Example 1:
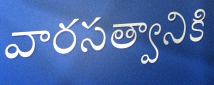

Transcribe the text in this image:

వారసత్వానికి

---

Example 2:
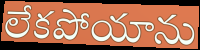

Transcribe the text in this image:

లేకపోయాను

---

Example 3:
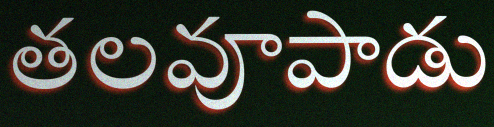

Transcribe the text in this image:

తలవూపాడు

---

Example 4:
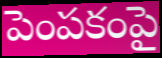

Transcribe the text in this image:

పెంపకంపై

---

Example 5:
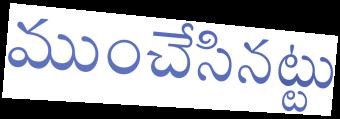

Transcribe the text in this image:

ముంచేసినట్టు